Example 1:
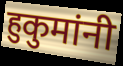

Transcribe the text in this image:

हुकुमांनी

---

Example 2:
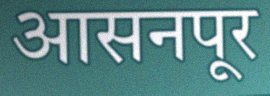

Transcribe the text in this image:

आसनपूर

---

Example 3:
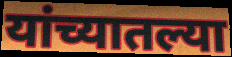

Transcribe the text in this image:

यांच्यातल्या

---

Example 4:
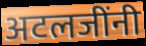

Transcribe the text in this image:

अटलजींनी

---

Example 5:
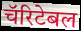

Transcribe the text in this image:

चॅरिटेबल